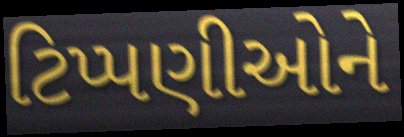
ટિપ્પણીઓને